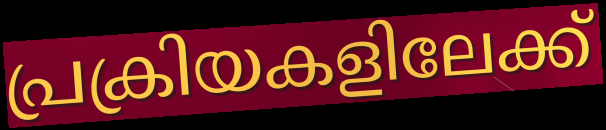
പ്രക്രിയകളിലേക്ക്